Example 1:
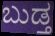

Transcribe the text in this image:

ಬುಡ್ತ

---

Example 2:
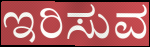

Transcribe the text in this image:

ಇರಿಸುವ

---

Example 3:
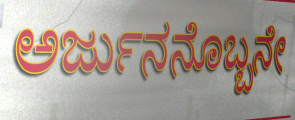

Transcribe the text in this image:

ಅರ್ಜುನನೊಬ್ಬನೇ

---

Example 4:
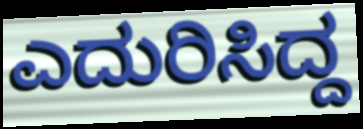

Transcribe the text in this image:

ಎದುರಿಸಿದ್ದ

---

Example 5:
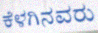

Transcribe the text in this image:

ಕೆಳಗಿನವರು